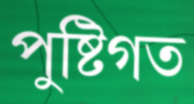
পুষ্টিগত